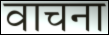
वाचना